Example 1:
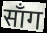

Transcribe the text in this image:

साँग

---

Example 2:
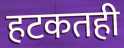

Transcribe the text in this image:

हटकतही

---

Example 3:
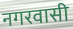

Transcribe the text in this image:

नगरवासी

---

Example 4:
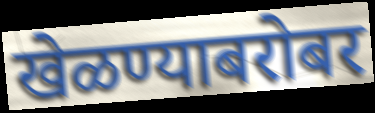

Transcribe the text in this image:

खेळण्याबरोबर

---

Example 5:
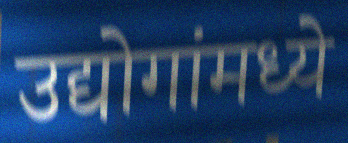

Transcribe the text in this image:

उद्योगांमध्ये